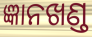
ଜ୍ଞାନଖଣ୍ଡ